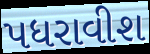
પધરાવીશ